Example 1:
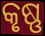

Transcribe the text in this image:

କୃଷ୍ଣ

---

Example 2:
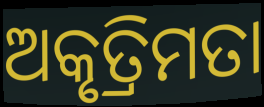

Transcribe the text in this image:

ଅକୃତ୍ରିମତା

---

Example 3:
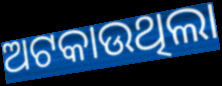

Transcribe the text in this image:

ଅଟକାଉଥିଲା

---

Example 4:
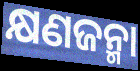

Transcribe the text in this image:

କ୍ଷଣଜନ୍ମା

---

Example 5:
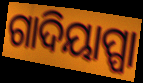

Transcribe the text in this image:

ଗାଦିୟାପ୍ପା